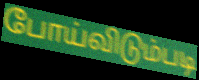
போய்விடும்படி